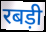
रबड़ी